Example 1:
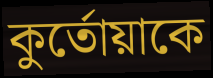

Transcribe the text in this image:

কুর্তোয়াকে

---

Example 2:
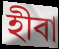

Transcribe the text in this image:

হীবা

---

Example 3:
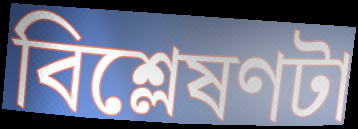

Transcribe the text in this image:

বিশ্লেষণটা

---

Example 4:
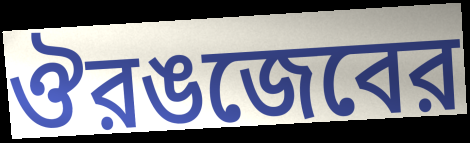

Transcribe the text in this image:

ঔরঙজেবের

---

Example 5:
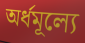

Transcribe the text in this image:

অর্ধমূল্যে